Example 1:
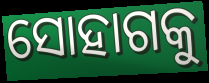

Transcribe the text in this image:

ସୋହାଗକୁ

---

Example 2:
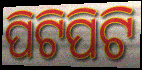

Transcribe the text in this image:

ପିଟିପିଟି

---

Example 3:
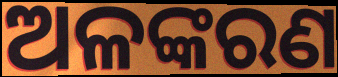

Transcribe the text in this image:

ଅଳଙ୍କରଣ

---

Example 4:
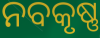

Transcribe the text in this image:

ନବକୃଷ୍ଣ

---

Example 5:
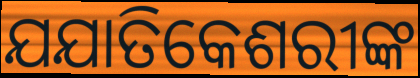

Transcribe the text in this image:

ଯଯାତିକେଶରୀଙ୍କ